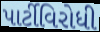
પાર્ટીવિરોધી